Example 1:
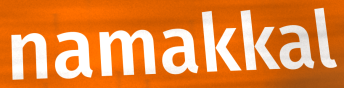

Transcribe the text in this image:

namakkal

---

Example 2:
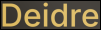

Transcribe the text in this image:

Deidre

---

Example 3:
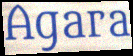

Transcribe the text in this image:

Agara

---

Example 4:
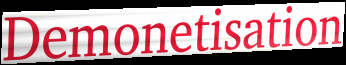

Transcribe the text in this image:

Demonetisation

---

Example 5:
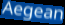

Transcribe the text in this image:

Aegean